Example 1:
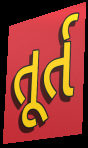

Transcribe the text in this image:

તૂર્ત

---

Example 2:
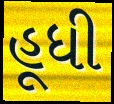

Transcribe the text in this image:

હૂધી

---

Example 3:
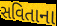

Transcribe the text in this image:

સવિતાના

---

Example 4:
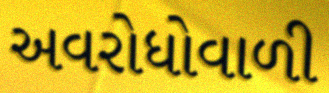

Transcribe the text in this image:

અવરોધોવાળી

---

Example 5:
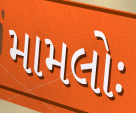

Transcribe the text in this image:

મામલોઃ